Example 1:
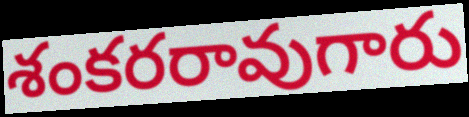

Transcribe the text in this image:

శంకరరావుగారు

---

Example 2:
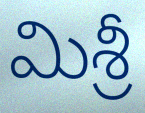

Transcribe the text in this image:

మిశ్రీ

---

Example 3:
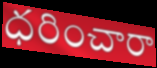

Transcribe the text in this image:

ధరించారా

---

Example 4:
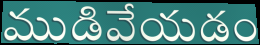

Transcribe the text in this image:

ముడివేయడం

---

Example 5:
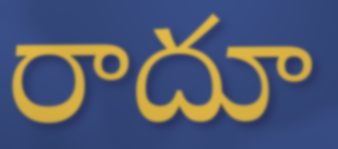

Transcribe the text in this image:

రాదూ